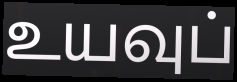
உயவுப்